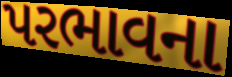
પરભાવના